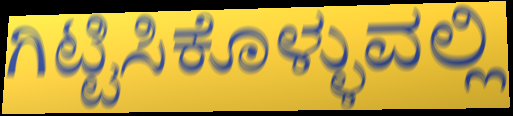
ಗಿಟ್ಟಿಸಿಕೊಳ್ಳುವಲ್ಲಿ